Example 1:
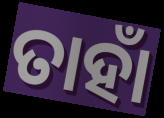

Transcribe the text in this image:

ତାହାଁ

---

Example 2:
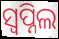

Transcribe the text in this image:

ସ୍ୱପ୍ନିଲ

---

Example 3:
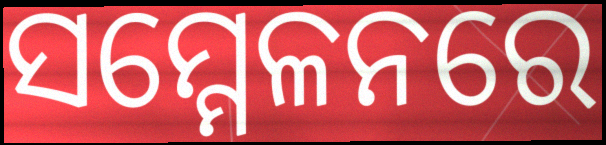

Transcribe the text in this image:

ସମ୍ମେଳନରେ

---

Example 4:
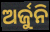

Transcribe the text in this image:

ଅର୍ଜୁନି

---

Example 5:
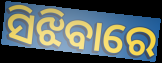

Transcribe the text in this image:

ସିଝିବାରେ